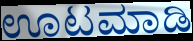
ಊಟಮಾಡಿ